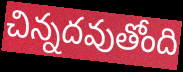
చిన్నదవుతోంది